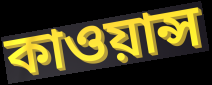
কাওয়ান্স